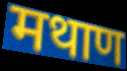
मथाण